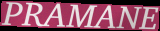
PRAMANE